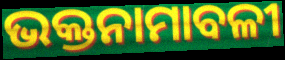
ଭକ୍ତନାମାବଳୀ